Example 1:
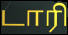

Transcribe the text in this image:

டாரி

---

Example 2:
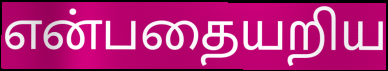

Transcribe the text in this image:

என்பதையறிய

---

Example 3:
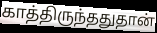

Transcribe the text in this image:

காத்திருந்ததுதான்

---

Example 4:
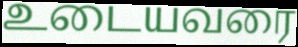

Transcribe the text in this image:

உடையவரை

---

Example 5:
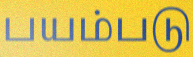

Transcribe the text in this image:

பயம்படு